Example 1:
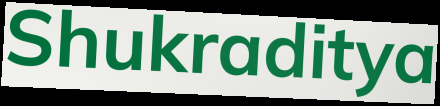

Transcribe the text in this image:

Shukraditya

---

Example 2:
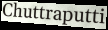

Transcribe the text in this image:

Chuttraputti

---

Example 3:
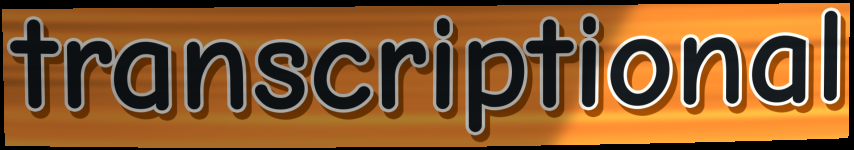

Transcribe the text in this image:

transcriptional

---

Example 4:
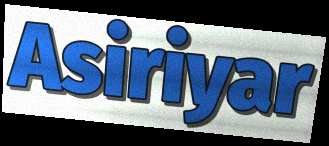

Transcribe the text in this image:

Asiriyar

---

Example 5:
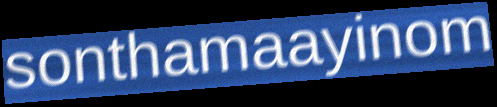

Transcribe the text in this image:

sonthamaayinom